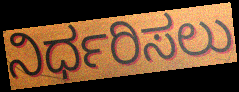
ನಿರ್ಧರಿಸಲು